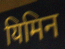
यिमिन